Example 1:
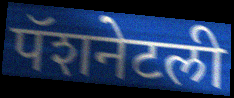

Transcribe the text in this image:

पॅशनेटली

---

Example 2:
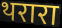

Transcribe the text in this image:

थरारा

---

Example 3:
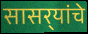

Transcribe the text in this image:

सासर्‍यांचे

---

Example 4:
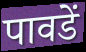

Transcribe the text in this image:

पावडें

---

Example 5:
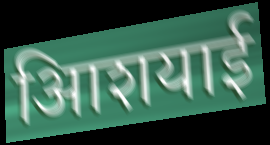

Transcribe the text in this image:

आिशयाई